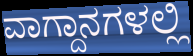
ವಾಗ್ದಾನಗಳಲ್ಲಿ